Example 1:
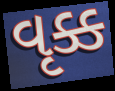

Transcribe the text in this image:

વૃક્ક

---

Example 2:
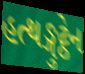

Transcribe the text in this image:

હત્થઙ્ગુટ્ઠેન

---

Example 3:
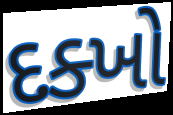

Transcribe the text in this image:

દક્ખો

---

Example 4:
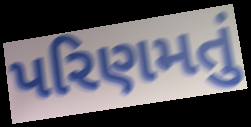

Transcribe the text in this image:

પરિણમતું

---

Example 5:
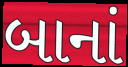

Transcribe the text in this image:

બાનાં